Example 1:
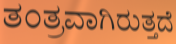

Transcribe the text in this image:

ತಂತ್ರವಾಗಿರುತ್ತದೆ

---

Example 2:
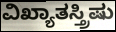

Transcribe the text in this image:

ವಿಖ್ಯಾತಸ್ತ್ರಿಷು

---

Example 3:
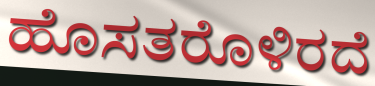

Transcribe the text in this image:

ಹೊಸತರೊಳಿರದೆ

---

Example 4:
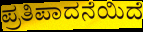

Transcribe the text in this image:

ಪ್ರತಿಪಾದನೆಯಿದೆ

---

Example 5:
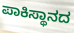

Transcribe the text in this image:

ಪಾಕಿಸ್ಥಾನದ